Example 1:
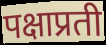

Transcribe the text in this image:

पक्षाप्रती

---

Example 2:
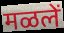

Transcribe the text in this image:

मळलें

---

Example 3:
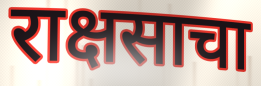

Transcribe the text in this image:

राक्षसाचा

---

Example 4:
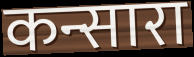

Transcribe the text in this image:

कन्सारा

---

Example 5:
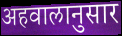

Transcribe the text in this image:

अहवालानुसार